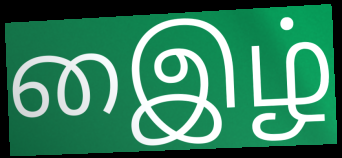
இைழ்